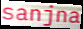
sanjna